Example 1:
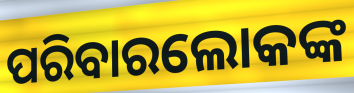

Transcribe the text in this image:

ପରିବାରଲୋକଙ୍କ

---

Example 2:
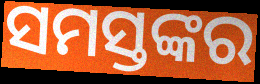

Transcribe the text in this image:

ସମସ୍ତଙ୍କର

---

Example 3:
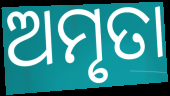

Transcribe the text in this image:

ଅମୃତା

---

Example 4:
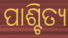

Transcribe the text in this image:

ପାଶ୍ଚିତ୍ୟ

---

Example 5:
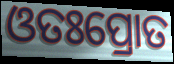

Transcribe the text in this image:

ଓତଃପ୍ରୋତ